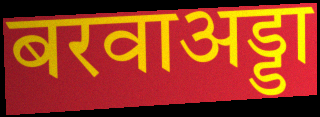
बरवाअड्डा